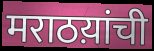
मराठय़ांची